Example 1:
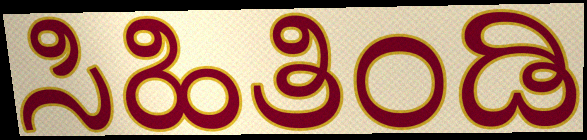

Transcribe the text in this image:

ಸಿಹಿತಿಂಡಿ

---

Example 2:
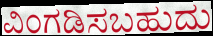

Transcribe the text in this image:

ವಿಂಗಡಿಸಬಹುದು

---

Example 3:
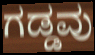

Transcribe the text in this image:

ಗಡ್ಡವು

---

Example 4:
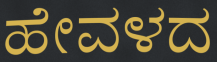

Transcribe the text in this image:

ಹೇವಳದ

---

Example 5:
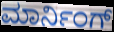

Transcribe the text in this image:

ಮಾರ್ನಿಂಗ್